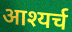
आश्यर्च